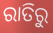
ରାତିରୁ